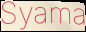
Syama